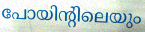
പോയിന്റിലെയും